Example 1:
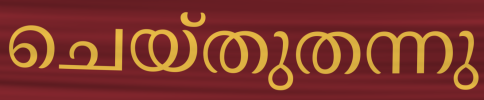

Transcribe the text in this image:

ചെയ്തുതന്നു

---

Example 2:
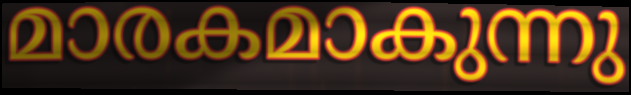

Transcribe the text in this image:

മാരകമാകുന്നു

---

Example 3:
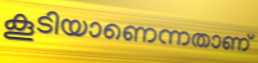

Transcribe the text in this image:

കൂടിയാണെന്നതാണ്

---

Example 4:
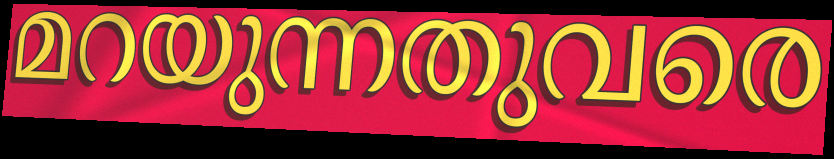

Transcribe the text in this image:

മറയുന്നതുവരെ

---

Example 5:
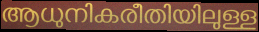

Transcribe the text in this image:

ആധുനികരീതിയിലുള്ള